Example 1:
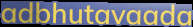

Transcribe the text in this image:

adbhutavaada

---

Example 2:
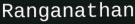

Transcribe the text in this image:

Ranganathan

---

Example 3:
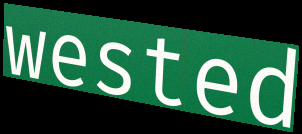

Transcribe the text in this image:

wested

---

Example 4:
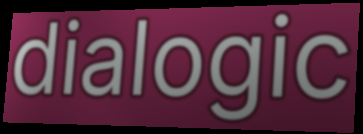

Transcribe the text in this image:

dialogic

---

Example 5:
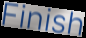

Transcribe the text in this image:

Finish